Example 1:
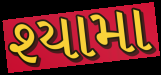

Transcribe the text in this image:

શ્યામા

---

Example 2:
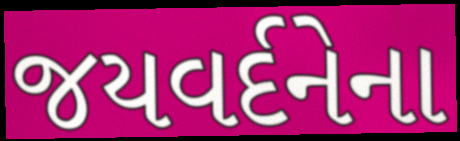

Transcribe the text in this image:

જયવર્દનેના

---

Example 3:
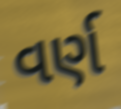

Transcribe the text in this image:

વર્ણ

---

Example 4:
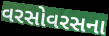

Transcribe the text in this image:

વરસોવરસના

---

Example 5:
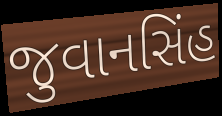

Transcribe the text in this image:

જુવાનસિંહ